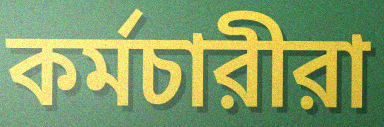
কর্মচারীরা